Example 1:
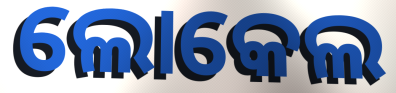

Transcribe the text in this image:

ଲୋକେଲ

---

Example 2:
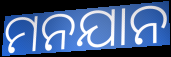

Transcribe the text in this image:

ମନଯାନ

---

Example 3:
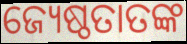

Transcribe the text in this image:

ଜ୍ୟେଷ୍ଠତାତଙ୍କ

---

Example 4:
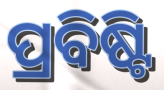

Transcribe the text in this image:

ପ୍ରବିଷ୍ଟି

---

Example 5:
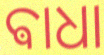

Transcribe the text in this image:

ଵାଧା